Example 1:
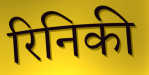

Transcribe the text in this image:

रिनिकी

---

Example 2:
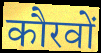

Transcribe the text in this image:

कौरवों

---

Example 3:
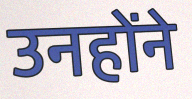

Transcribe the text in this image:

उनहोंने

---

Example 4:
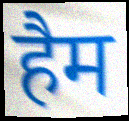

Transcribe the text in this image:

हैम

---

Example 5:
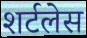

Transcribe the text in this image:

शर्टलेस